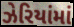
ઝેરિયાંમાં